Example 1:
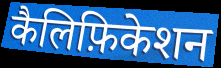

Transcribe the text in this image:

कैलिफ़िकेशन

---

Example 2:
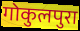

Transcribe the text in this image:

गोकुलपुरा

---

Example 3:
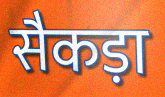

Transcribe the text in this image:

सैकड़ा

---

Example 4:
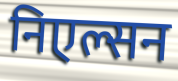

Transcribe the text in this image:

निएल्सन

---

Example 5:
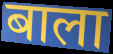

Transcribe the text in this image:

बाला